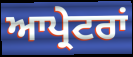
ਆਪ੍ਰੇਟਰਾਂ